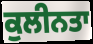
ਕੁਲੀਨਤਾ